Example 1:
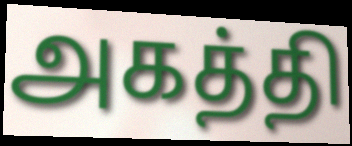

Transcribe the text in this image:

அகத்தி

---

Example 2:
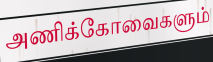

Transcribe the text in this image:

அணிக்கோவைகளும்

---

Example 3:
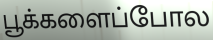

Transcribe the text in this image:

பூக்களைப்போல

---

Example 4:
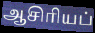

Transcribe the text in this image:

ஆசிரியப்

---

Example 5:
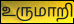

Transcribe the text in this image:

உருமாறி